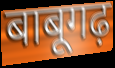
बाबूगढ़